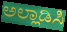
ಅಲ್ಲಾಡಿಸಿ